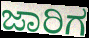
ಜಾರಿಗ